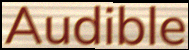
Audible